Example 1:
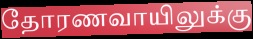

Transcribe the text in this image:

தோரணவாயிலுக்கு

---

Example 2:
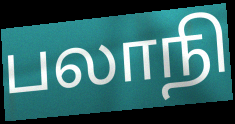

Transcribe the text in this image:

பலாநி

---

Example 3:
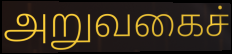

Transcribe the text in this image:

அறுவகைச்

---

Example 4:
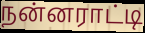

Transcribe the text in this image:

நன்னராட்டி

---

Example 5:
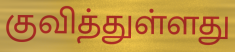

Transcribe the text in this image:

குவித்துள்ளது